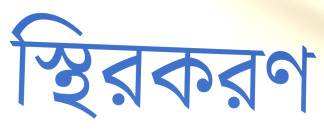
স্থিরকরণ